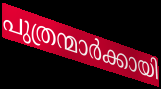
പുത്രന്മാർക്കായി